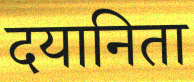
दयानिता